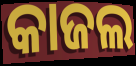
କାଜଲ